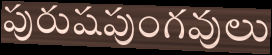
పురుషపుంగవులు